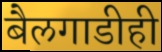
बैलगाडीही